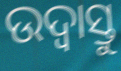
ଉଦ୍ବାସ୍ତୁ